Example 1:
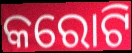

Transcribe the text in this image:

କରୋଟି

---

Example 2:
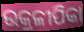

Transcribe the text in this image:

ଉକ୍ରଳୀପିକା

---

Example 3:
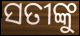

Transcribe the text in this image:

ସତୀଙ୍କୁ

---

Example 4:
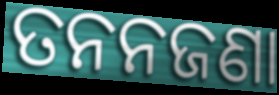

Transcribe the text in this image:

ତନନଜଣା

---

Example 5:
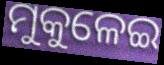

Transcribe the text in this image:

ମୁକୁଳେଇ